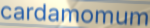
cardamomum